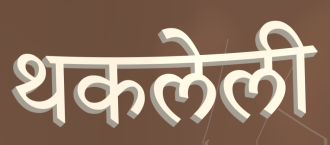
थकलेली